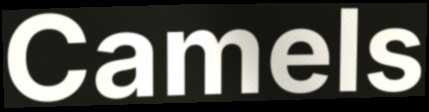
Camels